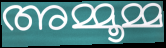
അമ്മൂമ്മ